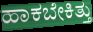
ಹಾಕಬೇಕಿತ್ತು